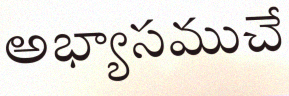
అభ్యాసముచే